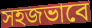
সহজভাবে